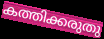
കത്തിക്കരുതു